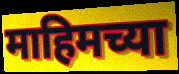
माहिमच्या